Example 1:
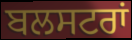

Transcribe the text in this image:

ਬਲਸਟਰਾਂ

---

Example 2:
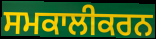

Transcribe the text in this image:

ਸਮਕਾਲੀਕਰਨ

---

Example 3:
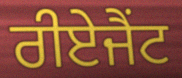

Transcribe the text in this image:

ਰੀਏਜੈਂਟ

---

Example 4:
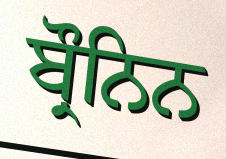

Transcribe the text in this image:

ਬ੍ਰੌਨਿਨ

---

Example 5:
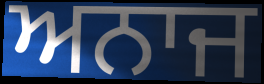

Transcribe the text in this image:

ਅਨਾਜ